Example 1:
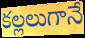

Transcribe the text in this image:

కల్లలుగానే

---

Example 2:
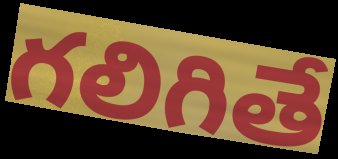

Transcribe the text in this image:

గలిగితే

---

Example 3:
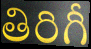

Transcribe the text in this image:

తిరిగీ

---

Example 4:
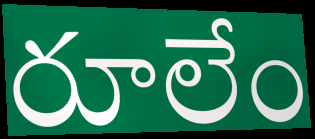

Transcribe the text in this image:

రూలేం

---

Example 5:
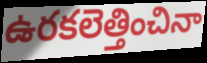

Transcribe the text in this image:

ఉరకలెత్తించినా